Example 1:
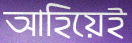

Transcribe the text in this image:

আহিয়েই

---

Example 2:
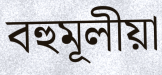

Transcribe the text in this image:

বহুমূলীয়া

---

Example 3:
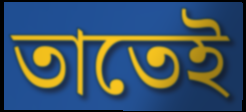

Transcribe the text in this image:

তাতেই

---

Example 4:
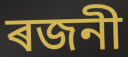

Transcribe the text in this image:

ৰজনী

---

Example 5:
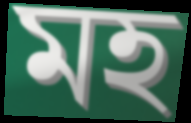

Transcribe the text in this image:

মহ